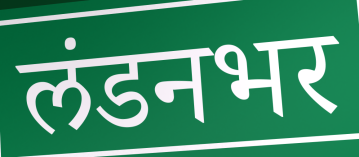
लंडनभर